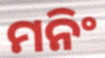
ମନିଂ